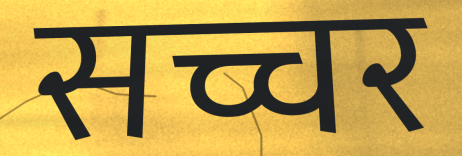
सच्चर